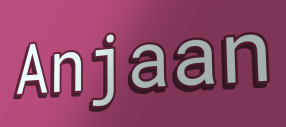
Anjaan